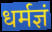
धर्मज्ञं